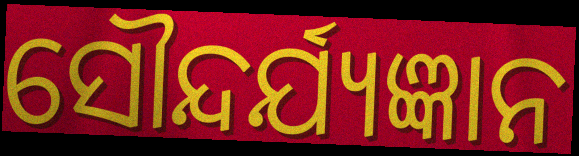
ସୌନ୍ଦର୍ଯ୍ୟଜ୍ଞାନ